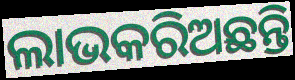
ଲାଭକରିଅଛନ୍ତି